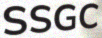
SSGC